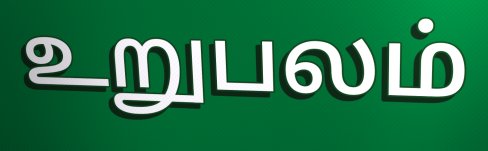
உறுபலம்